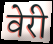
वेरी